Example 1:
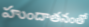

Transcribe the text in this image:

హుందాతనంతో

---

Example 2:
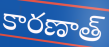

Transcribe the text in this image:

కారణాత్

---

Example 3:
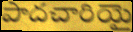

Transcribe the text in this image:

పాదచారియై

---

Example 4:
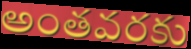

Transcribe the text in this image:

అంతవరకు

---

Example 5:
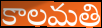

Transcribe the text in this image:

కాలమతి